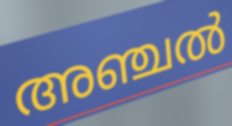
അഞ്ചൽ